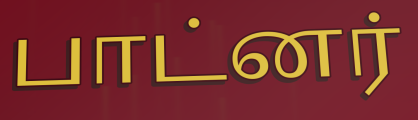
பாட்னர்